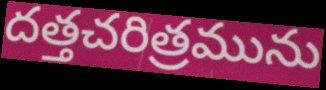
దత్తచరిత్రమును